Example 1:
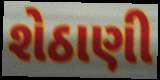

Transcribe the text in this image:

શેઠાણી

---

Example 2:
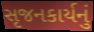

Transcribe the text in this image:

સૃજનકાર્યનું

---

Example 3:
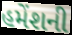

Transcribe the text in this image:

હમેંશની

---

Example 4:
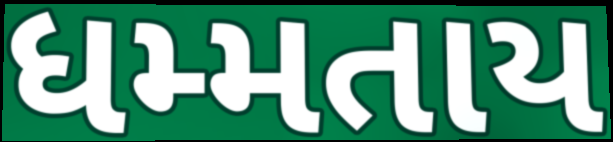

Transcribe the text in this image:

ધમ્મતાય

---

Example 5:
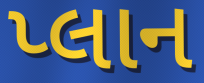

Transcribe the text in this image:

પ્લાન